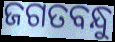
ଜଗତବନ୍ଧୁ